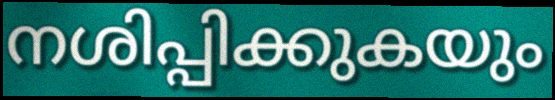
നശിപ്പിക്കുകയും